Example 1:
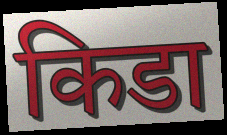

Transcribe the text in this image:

किडा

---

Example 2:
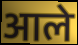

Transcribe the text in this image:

आले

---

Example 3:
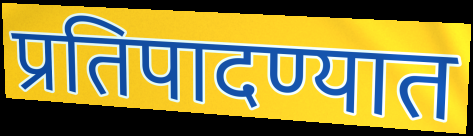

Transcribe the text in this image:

प्रतिपादण्यात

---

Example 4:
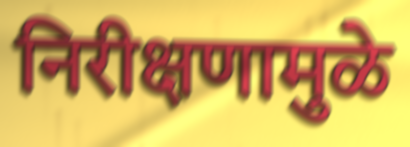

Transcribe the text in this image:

निरीक्षणामुळे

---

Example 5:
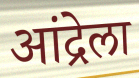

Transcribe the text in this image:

आंद्रेला